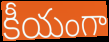
కీయంగా